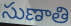
సుణాతి